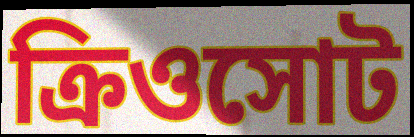
ক্রিওসোট